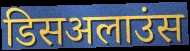
डिसअलाउंस